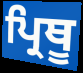
ਪ੍ਰਿਥੂ